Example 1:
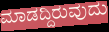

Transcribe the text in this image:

ಮಾಡದ್ದಿರುವುದು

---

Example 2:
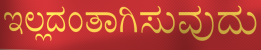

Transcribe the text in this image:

ಇಲ್ಲದಂತಾಗಿಸುವುದು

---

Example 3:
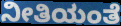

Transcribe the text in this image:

ನೀತಿಯಂತೆ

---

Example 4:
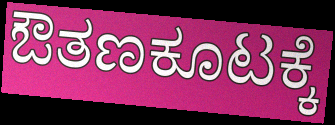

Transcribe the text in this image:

ಔತಣಕೂಟಕ್ಕೆ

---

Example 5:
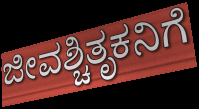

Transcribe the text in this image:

ಜೀವಶ್ಚಿತೃಕನಿಗೆ